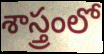
శాస్త్రంలో